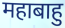
महाबाहु